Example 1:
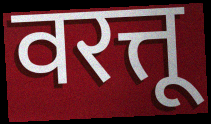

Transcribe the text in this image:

वरत्तू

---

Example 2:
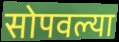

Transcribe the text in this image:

सोपवल्या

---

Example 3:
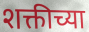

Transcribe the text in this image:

शक्तीच्या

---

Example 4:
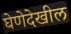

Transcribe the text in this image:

घेणेदेखील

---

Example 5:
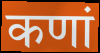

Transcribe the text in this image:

कणां